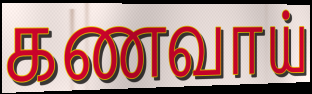
கணவாய்